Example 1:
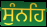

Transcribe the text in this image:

ਸੁੰਨਹਿ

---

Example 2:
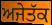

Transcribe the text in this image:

ਅਜੇਤੱਕ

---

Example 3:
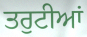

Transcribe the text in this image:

ਤਰੁਟੀਆਂ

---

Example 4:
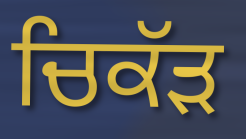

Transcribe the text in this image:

ਚਿਕੱੜ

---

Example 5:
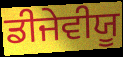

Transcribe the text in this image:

ਡੀਜੇਵੀਯੂ